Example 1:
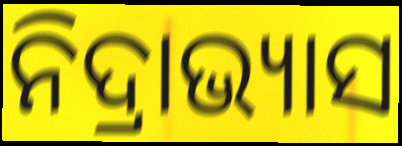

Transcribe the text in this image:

ନିଦ୍ରାଭ୍ୟାସ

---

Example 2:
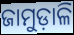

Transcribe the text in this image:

ଜାମୁଡ଼ାଳି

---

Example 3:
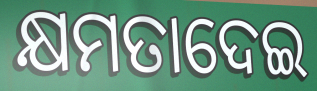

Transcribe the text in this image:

କ୍ଷମତାଦେଇ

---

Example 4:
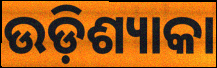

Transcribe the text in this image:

ଉଡ଼ିଶ୍ୟାକା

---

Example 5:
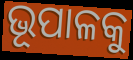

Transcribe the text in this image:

ଭୂପାଳକୁ